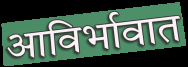
आविर्भावात